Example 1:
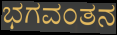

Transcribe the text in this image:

ಭಗವಂತನ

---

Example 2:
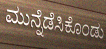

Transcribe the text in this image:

ಮುನ್ನೆಡೆಸಿಕೊಂಡು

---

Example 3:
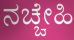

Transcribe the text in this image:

ನಚ್ಚೇಹಿ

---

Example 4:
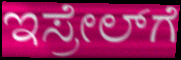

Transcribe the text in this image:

ಇಸ್ರೇಲ್‍ಗೆ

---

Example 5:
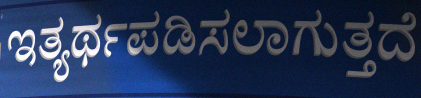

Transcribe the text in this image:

ಇತ್ಯರ್ಥಪಡಿಸಲಾಗುತ್ತದೆ